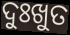
ଦୁଃଖୁତ